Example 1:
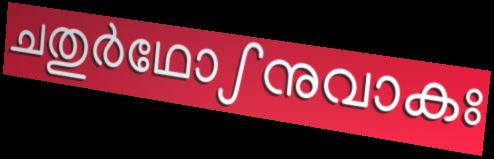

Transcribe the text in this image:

ചതുർഥോഽനുവാകഃ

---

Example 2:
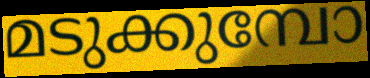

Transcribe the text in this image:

മടുക്കുമ്പോ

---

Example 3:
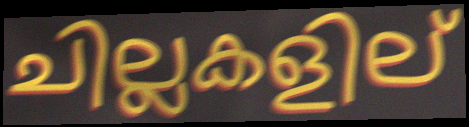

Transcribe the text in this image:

ചില്ലകളില്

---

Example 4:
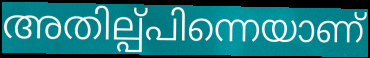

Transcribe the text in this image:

അതില്പ്പിന്നെയാണ്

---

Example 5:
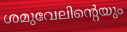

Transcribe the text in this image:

ശമുവേലിന്റെയും